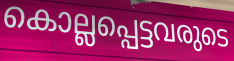
കൊല്ലപ്പെട്ടവരുടെ